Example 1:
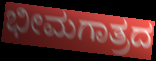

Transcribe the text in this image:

ಭೀಮಗಾತ್ರದ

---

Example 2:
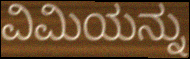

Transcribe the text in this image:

ವಿಮಿಯನ್ನು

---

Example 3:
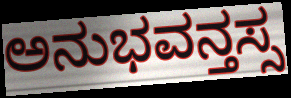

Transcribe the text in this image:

ಅನುಭವನ್ತಸ್ಸ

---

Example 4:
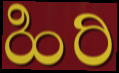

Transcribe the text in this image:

ಹಿರಿ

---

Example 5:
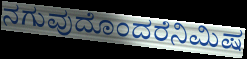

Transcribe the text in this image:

ನಗುವುದೊಂದರೆನಿಮಿಷ